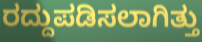
ರದ್ದುಪಡಿಸಲಾಗಿತ್ತು